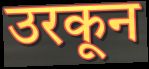
उरकून